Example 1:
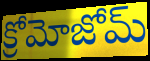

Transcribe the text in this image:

క్రోమోజోమ్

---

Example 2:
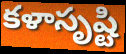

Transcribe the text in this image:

కళాసృష్టి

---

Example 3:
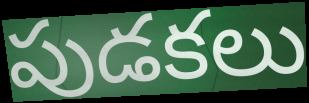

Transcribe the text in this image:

పుడకలు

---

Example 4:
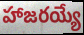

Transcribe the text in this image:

హాజరయ్యే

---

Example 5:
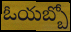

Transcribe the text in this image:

ఓయబ్బో